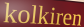
kolkiren